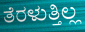
ತೆರಳುತ್ತಿಲ್ಲ